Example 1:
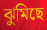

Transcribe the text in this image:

ঝুমিছে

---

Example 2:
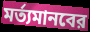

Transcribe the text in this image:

মর্ত্যমানবের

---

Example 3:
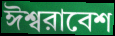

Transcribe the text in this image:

ঈশ্বরাবেশ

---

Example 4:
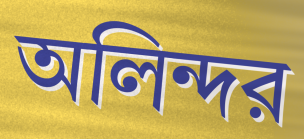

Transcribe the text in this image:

অলিন্দর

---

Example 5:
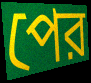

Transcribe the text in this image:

পের